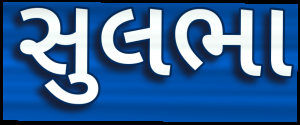
સુલભા